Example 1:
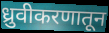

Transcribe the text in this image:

ध्रुवीकरणातून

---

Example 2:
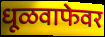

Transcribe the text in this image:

धूळवाफेवर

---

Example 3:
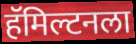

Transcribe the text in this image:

हॅमिल्टनला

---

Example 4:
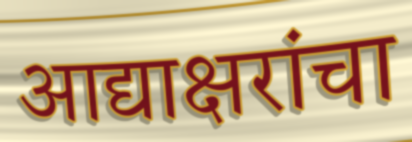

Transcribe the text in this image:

आद्याक्षरांचा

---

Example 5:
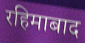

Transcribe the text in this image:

रहिमाबाद